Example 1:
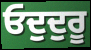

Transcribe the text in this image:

ਓਦੁਦੁਰੂ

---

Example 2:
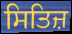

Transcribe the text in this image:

ਸਿਤਿਜ਼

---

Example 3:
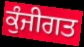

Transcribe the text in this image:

ਕੁੰਜੀਗਤ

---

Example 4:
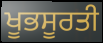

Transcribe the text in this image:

ਖੂਭਸੂਰਤੀ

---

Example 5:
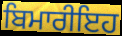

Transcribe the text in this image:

ਬਿਮਾਰੀਇਹ